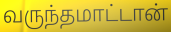
வருந்தமாட்டான்